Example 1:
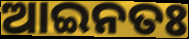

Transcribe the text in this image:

ଆଇନତଃ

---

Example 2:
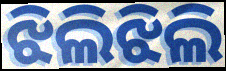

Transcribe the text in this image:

ଝିଲିଝିଲି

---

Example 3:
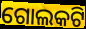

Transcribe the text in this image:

ଗୋଲକଟି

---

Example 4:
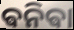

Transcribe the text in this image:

ଵନିଵା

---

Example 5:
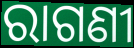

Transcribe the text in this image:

ରାଗଣୀ